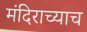
मंदिराच्याच